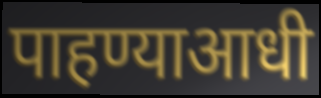
पाहण्याआधी